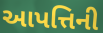
આપત્તિની